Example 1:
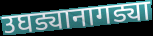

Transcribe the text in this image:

उघड्यानागड्या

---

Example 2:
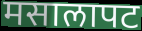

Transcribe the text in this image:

मसालापट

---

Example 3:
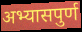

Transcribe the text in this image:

अभ्यासपुर्ण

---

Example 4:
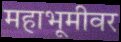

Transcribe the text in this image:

महाभूमीवर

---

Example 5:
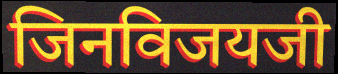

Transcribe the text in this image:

जिनविजयजी